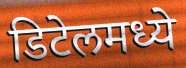
डिटेलमध्ये